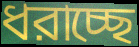
ধরাচ্ছে